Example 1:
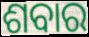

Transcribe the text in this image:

ଶବାର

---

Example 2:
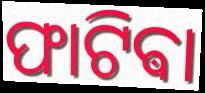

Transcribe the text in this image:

ଫାଟିଵା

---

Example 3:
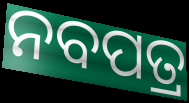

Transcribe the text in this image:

ନବପତ୍ର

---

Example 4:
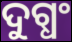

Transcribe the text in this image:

ଦୁଗ୍ଧଂ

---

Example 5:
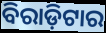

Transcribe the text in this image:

ବିରାଡ଼ିଟାର